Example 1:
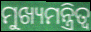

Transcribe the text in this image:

ମୁଖ୍ୟମନ୍ତ୍ରିତ୍ୱ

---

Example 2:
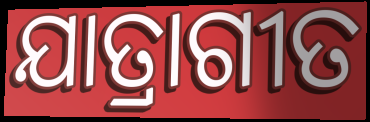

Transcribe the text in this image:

ଯାତ୍ରାଗୀତ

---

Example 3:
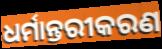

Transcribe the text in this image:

ଧର୍ମାନ୍ତରୀକରଣ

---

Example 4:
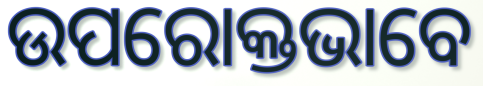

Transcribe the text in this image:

ଉପରୋକ୍ତଭାବେ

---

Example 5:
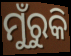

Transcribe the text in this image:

ମୁଁରୁକି